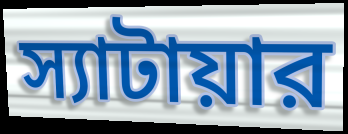
স্যাটায়ার